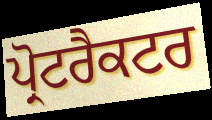
ਪ੍ਰੋਟਰੈਕਟਰ